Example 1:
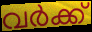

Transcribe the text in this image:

വർക്ക്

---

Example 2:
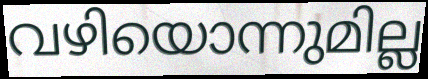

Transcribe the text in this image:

വഴിയൊന്നുമില്ല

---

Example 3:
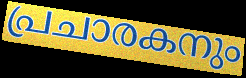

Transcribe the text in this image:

പ്രചാരകനും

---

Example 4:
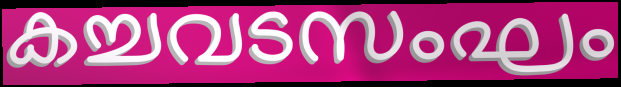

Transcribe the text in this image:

കച്ചവടസംഘം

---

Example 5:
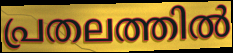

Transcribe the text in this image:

പ്രതലത്തിൽ